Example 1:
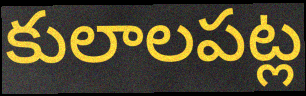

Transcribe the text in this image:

కులాలపట్ల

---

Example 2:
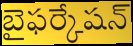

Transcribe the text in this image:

బైఫర్కేషన్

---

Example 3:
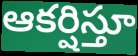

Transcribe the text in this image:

ఆకర్షిస్తూ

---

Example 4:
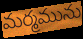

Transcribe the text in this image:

మర్మమును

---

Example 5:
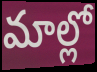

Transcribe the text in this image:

మాల్లో